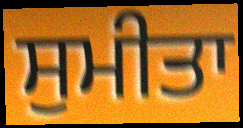
ਸੁਮੀਤਾ